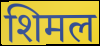
शिमल